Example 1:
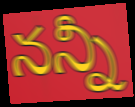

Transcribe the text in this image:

నన్నీ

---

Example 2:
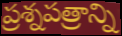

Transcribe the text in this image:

ప్రశ్నపత్రాన్ని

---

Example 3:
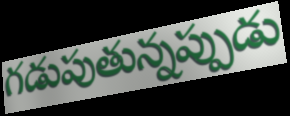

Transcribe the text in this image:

గడుపుతున్నప్పుడు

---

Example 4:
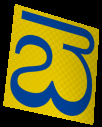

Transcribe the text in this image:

బె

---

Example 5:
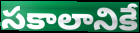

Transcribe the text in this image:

సకాలానికే